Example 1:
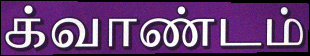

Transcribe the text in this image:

க்வாண்டம்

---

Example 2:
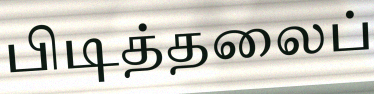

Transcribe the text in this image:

பிடித்தலைப்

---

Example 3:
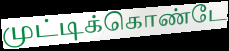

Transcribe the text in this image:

முட்டிக்கொண்டே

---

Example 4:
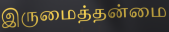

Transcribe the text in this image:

இருமைத்தன்மை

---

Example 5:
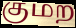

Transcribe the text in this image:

குமற